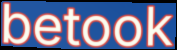
betook